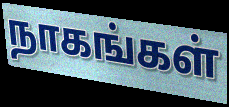
நாகங்கள்